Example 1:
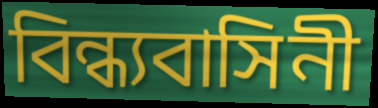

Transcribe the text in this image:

বিন্ধ্যবাসিনী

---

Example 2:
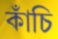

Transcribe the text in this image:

কাঁচি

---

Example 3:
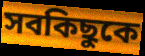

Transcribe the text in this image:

সবকিছুকে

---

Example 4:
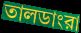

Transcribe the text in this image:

তালডাংরা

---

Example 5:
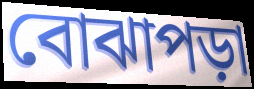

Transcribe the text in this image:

বোঝাপড়া